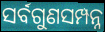
ସର୍ବଗୁଣସମ୍ପନ୍ନ